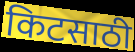
किटसाठी